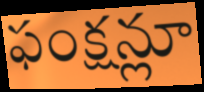
ఫంక్షన్లూ